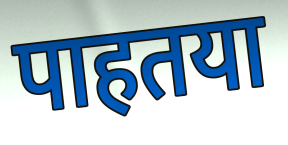
पाहतया